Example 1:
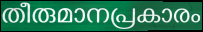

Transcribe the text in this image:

തീരുമാനപ്രകാരം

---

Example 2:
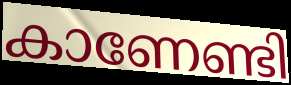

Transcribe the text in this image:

കാണേണ്ടി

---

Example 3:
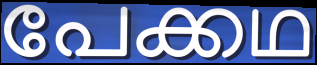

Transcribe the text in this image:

പേക്കഥ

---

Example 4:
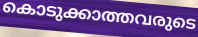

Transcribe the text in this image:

കൊടുക്കാത്തവരുടെ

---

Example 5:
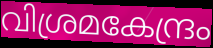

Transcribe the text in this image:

വിശ്രമകേന്ദ്രം